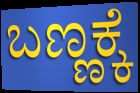
ಬಣ್ಣಕ್ಕೆ